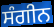
ਸੰਗੀਨ